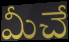
మీచే